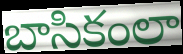
బాసికంలా